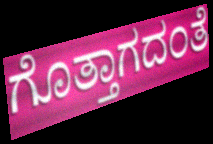
ಗೊತ್ತಾಗದಂತೆ